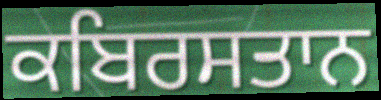
ਕਬਿਰਸਤਾਨ